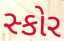
સ્કોર